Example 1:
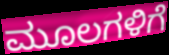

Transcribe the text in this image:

ಮೂಲಗಳಿಗೆ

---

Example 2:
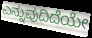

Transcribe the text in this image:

ಎನ್ನುವುದಿದೆಯೇ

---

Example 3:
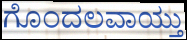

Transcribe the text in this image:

ಗೊಂದಲವಾಯ್ತು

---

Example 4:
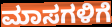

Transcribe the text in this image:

ಮಾಸಗಳಿಗೆ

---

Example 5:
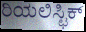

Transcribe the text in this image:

ರಿಯಲಿಸ್ಟಿಕ್